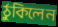
ঠুকিলেন